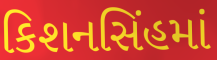
કિશનસિંહમાં